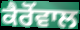
ਕੈਰੋਂਵਾਲ